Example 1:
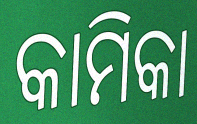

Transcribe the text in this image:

କାମିକା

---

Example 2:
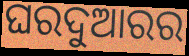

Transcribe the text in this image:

ଘରଦୁଆରର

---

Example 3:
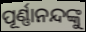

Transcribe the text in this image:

ପୂର୍ଣ୍ଣାନନ୍ଦଙ୍କୁ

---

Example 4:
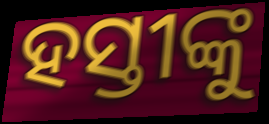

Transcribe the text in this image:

ହସ୍ତୀଙ୍କୁ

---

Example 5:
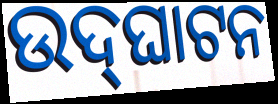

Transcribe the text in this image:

ଉଦ୍‍ଘାଟନ